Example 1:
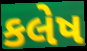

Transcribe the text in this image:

કલેષ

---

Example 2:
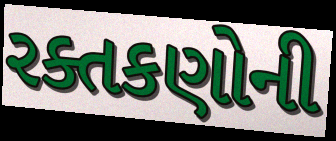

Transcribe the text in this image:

રક્તકણોની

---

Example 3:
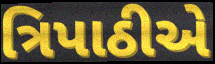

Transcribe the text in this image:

ત્રિપાઠીએ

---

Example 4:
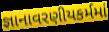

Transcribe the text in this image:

જ્ઞાનાવરણીયકર્મમાં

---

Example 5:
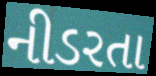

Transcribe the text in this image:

નીડરતા